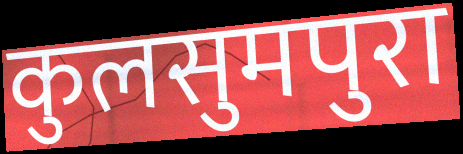
कुलसुमपुरा